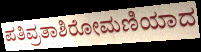
ಪತಿವ್ರತಾಶಿರೋಮಣಿಯಾದ